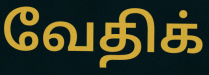
வேதிக்